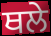
ਥਲੇ